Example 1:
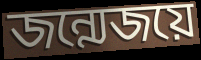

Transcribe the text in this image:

জন্মেজয়ে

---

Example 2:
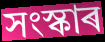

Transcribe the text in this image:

সংস্কাৰ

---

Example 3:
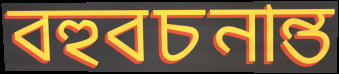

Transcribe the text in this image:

বহুবচনান্ত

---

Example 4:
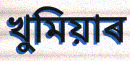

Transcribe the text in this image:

খুমিয়াৰ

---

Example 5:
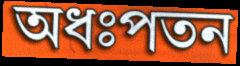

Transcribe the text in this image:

অধঃপতন